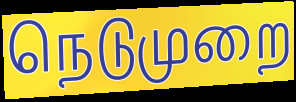
நெடுமுறை